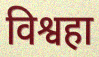
विश्वहा